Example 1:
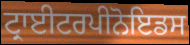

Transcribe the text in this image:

ਟ੍ਰਾਈਟਰਪੀਨੋਇਡਸ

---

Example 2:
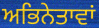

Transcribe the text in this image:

ਅਭਿਨੇਤਾਵਾਂ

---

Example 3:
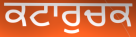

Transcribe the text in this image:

ਕਟਾਰੁਚਕ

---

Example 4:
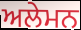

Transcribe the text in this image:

ਅਲੇਮਨ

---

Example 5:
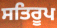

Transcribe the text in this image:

ਸਤਿਰੂਪ